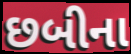
છબીના